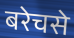
बरेचसे